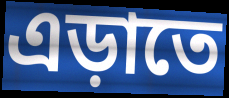
এড়াতে